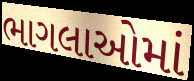
ભાગલાઓમાં